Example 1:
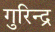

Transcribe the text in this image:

गुरिन्द्र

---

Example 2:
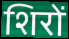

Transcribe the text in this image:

शिरों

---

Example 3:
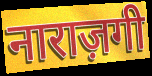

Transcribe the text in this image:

नाराज़गी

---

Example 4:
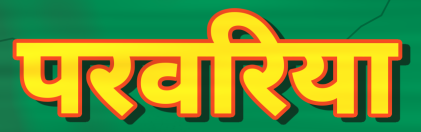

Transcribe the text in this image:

परवरिया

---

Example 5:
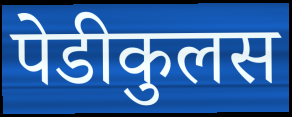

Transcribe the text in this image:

पेडीकुलस